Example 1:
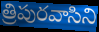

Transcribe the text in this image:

త్రిపురవాసిని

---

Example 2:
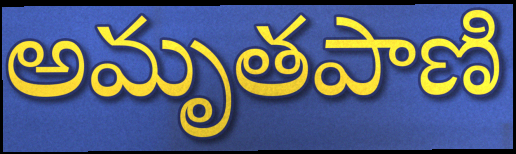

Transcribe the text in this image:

అమృతపాణి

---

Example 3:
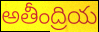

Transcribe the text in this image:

అతీంద్రియ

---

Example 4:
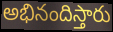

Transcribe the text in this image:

అభినందిస్తారు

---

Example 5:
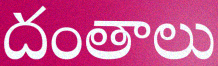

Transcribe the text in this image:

దంతాలు